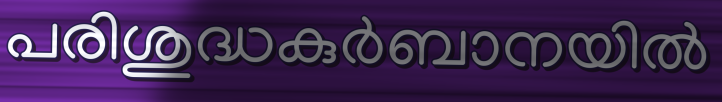
പരിശുദ്ധകുർബാനയിൽ